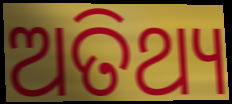
ଅତିଥ୍ୟ